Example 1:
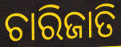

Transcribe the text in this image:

ଚାରିଜାତି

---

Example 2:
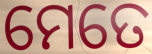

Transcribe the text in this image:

ମେତେ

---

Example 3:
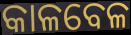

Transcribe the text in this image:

କାଳବେଳ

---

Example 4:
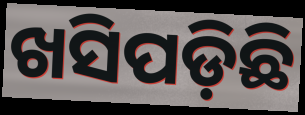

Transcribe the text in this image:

ଖସିପଡ଼ିଛି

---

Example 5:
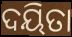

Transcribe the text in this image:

ଦୟିତା